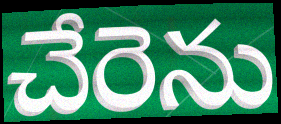
చేరెను